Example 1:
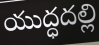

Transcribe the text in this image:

యుద్ధదల్లి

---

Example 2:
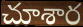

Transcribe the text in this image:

చూశార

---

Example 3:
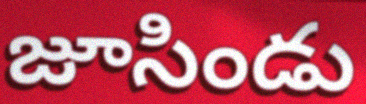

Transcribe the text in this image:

జూసిండు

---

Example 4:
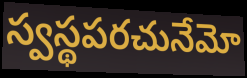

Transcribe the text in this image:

స్వస్థపరచునేమో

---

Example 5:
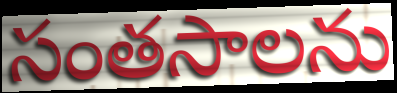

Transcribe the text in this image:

సంతసాలను